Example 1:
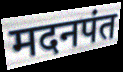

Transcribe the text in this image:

मदनपंत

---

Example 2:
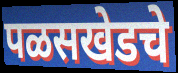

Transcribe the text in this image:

पळसखेडचे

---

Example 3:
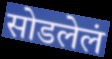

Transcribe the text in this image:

सोडलेलं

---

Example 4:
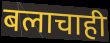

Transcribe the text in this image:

बलाचाही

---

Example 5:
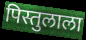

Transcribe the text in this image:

पिस्तुलाला